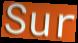
Sur